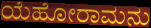
ಯೆಹೋರಾಮನು